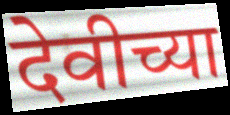
देवीच्या